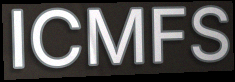
ICMFS